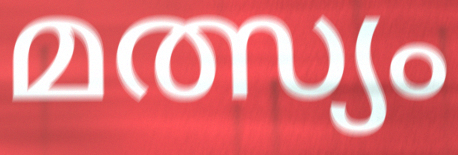
മത്സ്യം